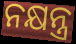
ନକ୍ଷନ୍ତ୍ର